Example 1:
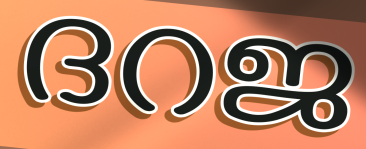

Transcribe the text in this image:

ദറജ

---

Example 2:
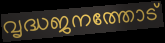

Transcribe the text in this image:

വൃദ്ധജനത്തോട്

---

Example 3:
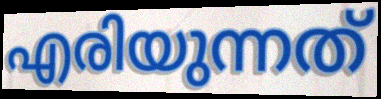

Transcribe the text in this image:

എരിയുന്നത്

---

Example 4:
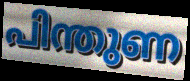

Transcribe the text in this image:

പിന്തുണ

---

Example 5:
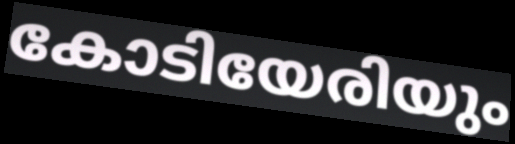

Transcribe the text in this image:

കോടിയേരിയും